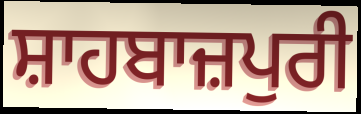
ਸ਼ਾਹਬਾਜ਼ਪੁਰੀ